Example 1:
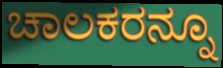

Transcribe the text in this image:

ಚಾಲಕರನ್ನೂ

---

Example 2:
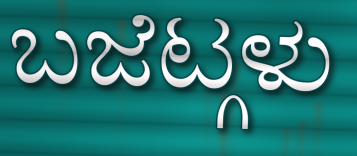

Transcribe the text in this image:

ಬಜೆಟ್ಗಳು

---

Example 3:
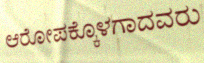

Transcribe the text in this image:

ಆರೋಪಕ್ಕೊಳಗಾದವರು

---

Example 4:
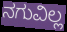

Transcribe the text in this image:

ನಗುವಿಲ್ಲ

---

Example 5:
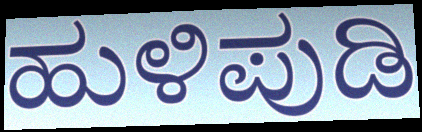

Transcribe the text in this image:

ಹುಳಿಪುಡಿ